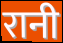
रानी